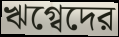
ঋগ্বেদের